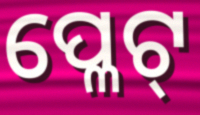
ପ୍ଳେଟ୍